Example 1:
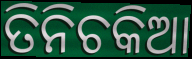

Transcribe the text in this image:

ତିନିଚକିଆ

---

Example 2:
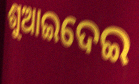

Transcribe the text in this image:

ଶୁଆଇଦେଇ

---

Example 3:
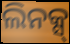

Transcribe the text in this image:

ଲିନକ୍ସ୍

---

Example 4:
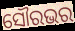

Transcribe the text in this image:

ସୌରଭର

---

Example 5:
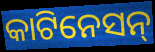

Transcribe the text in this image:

କାଟିନେସନ୍